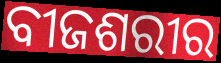
ବୀଜଶରୀର